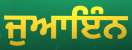
ਜੁਆਇੰਨ